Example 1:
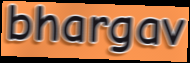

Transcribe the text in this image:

bhargav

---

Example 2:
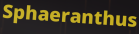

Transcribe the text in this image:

Sphaeranthus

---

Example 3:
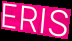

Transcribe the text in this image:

ERIS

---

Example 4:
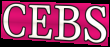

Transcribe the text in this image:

CEBS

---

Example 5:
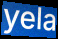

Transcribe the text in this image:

yela